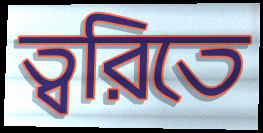
ত্বরিতে